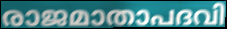
രാജമാതാപദവി